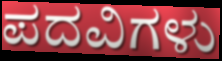
ಪದವಿಗಳು